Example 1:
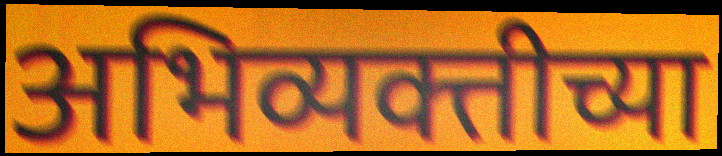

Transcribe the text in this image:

अभिव्यक्तीच्या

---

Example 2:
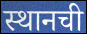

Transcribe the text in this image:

स्थानची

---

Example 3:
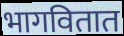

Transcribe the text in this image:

भागवितात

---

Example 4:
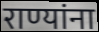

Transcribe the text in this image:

राण्यांना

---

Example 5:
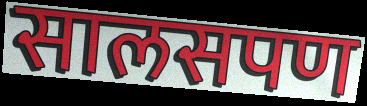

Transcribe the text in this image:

सालसपण